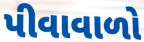
પીવાવાળો